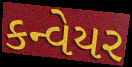
કન્વેયર